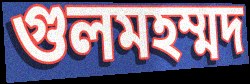
গুলমহম্মদ